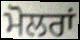
ਮੋਲਰਾਂ